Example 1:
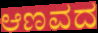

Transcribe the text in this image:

ಆಣವದ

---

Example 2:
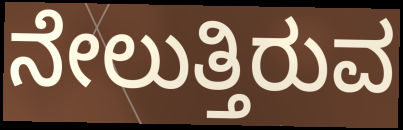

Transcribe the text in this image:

ನೇಲುತ್ತಿರುವ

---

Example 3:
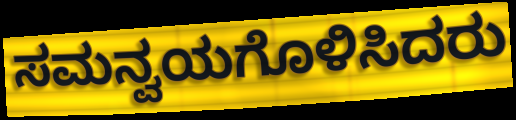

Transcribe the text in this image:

ಸಮನ್ವಯಗೊಳಿಸಿದರು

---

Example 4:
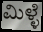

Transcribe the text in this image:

ಮಿಳ್ಳೆ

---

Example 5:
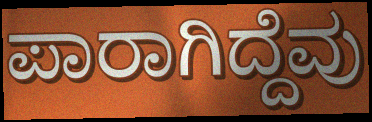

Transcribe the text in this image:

ಪಾರಾಗಿದ್ದೆವು